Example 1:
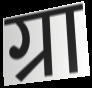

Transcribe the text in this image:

ग्रा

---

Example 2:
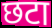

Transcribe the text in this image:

छटा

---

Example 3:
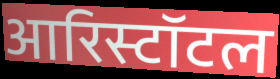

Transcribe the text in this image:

आरिस्टॉटल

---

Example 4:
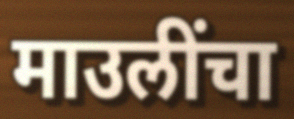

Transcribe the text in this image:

माउलींचा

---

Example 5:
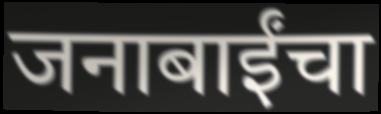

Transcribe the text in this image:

जनाबाईंचा